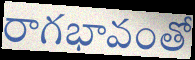
రాగభావంతో